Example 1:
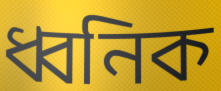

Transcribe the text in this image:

ধ্বনিক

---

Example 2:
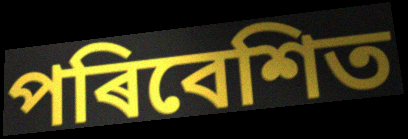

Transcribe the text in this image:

পৰিবেশিত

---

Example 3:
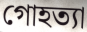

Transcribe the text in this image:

গোহত্যা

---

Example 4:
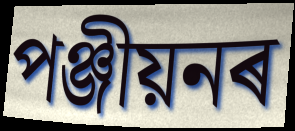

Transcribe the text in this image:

পঞ্জীয়নৰ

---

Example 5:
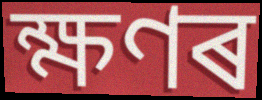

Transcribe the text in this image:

ক্ষণৰ